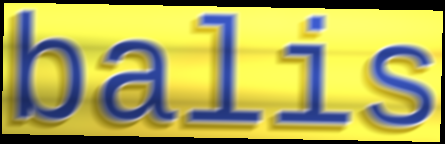
balis